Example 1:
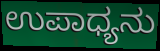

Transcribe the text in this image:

ಉಪಾಧ್ಯನು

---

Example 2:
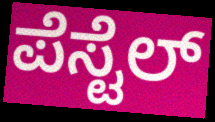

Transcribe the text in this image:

ಪೆಸ್ಟೆಲ್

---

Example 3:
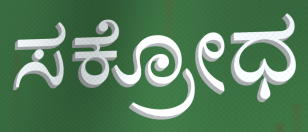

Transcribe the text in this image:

ಸಕ್ರೋಧ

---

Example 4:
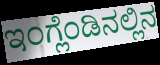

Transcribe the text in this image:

ಇಂಗ್ಲೆಂಡಿನಲ್ಲಿನ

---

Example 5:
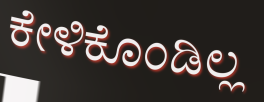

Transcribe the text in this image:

ಕೇಳಿಕೊಂಡಿಲ್ಲ